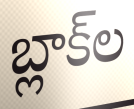
బ్లాక్‌ల